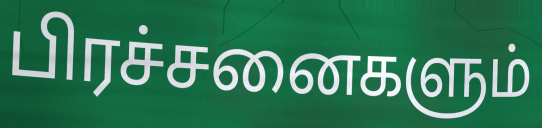
பிரச்சனைகளும்